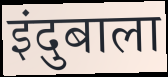
इंदुबाला